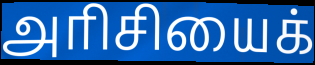
அரிசியைக்